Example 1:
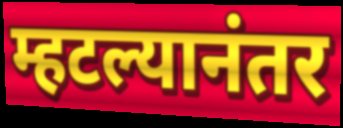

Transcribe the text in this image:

म्हटल्यानंतर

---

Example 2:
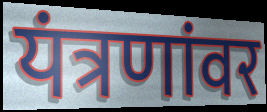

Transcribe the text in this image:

यंत्रणांवर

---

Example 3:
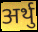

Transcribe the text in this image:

अर्थु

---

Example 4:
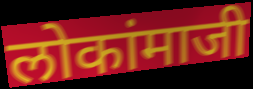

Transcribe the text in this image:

लोकांमाजी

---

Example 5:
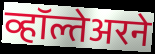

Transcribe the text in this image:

व्हॉल्तेअरने